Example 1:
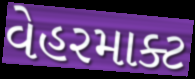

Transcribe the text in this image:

વેહરમાક્ટ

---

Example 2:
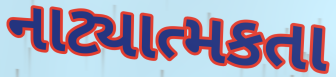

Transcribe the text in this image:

નાટ્યાત્મકતા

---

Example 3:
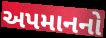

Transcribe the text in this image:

અપમાનનો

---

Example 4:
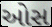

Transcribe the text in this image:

ઓસ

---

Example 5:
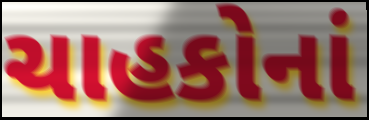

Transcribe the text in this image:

ચાહકોનાં